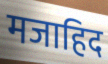
मजाहिद